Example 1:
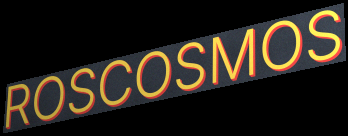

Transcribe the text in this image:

ROSCOSMOS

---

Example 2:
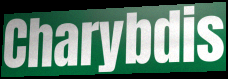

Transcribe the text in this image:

Charybdis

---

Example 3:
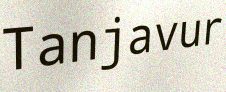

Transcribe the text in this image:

Tanjavur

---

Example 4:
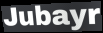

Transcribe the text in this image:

Jubayr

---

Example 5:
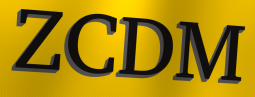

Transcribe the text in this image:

ZCDM